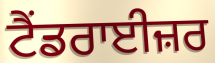
ਟੈਂਡਰਾਈਜ਼ਰ